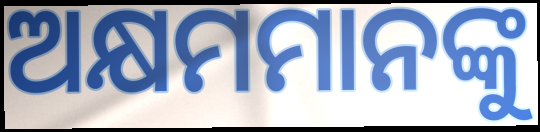
ଅକ୍ଷମମାନଙ୍କୁ